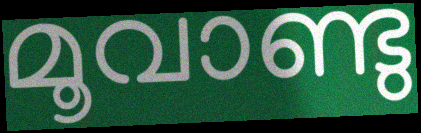
മൂവാണ്ടു